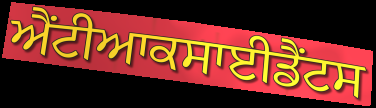
ਐਂਟੀਆਕਸਾਈਡੈਂਟਸ